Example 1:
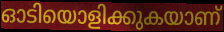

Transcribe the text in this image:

ഓടിയൊളിക്കുകയാണ്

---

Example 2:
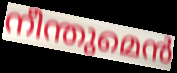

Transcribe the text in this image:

നീന്തുമെൻ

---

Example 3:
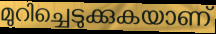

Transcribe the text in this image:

മുറിച്ചെടുക്കുകയാണ്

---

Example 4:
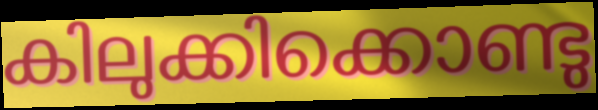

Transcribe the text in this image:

കിലുക്കിക്കൊണ്ടു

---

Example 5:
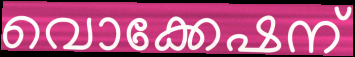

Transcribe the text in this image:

വൊക്കേഷന്